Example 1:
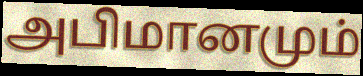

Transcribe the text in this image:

அபிமானமும்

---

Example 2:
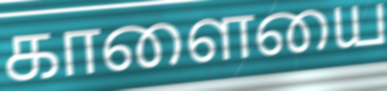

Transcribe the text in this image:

காளையை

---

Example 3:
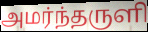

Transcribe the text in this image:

அமர்ந்தருளி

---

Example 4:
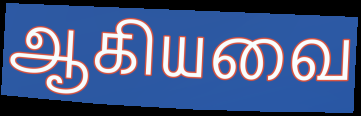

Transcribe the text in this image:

ஆகியவை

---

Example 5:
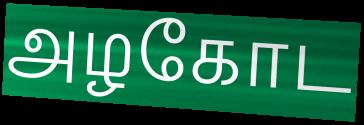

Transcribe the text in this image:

அழகோட